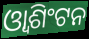
ଓ୍ୱାଶିଂଟନ